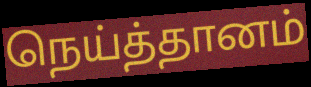
நெய்த்தானம்